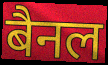
बैनल